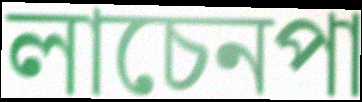
লাচেনপা